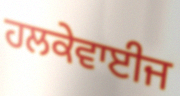
ਹਲਕੇਵਾਈਜ